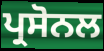
ਪ੍ਰਸੋਨਲ